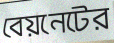
বেয়নেটের